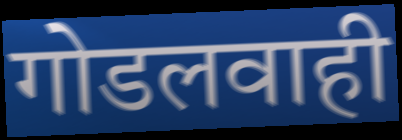
गोडलवाही